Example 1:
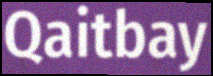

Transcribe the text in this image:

Qaitbay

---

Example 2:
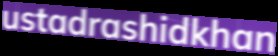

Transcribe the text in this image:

ustadrashidkhan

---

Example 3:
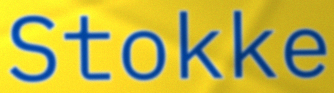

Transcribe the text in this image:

Stokke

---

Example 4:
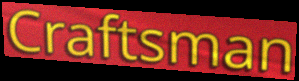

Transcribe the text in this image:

Craftsman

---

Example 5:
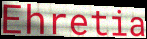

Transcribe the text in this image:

Ehretia